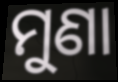
ମୁଣା